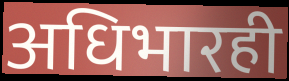
अधिभारही